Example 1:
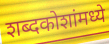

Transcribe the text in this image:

शब्दकोशांमध्ये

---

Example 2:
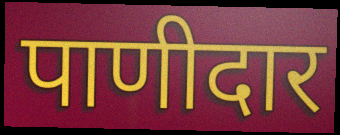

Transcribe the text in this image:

पाणीदार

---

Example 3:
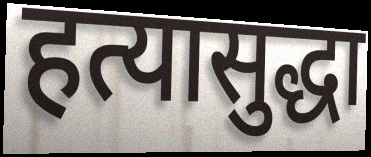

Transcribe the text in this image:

हत्यासुद्धा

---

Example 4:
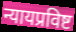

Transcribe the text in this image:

न्यायप्रविष्ट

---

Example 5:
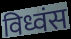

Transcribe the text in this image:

विध्वंस